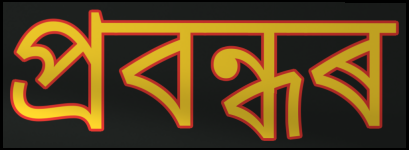
প্ৰবন্ধৰ